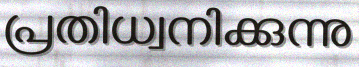
പ്രതിധ്വനിക്കുന്നു